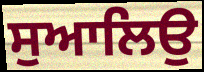
ਸੁਆਲਿਉ